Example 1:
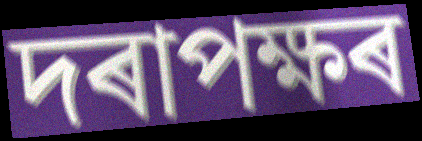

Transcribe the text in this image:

দৰাপক্ষৰ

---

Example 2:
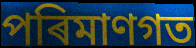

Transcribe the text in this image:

পৰিমাণগত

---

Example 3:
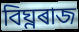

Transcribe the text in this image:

বিঘ্নৰাজ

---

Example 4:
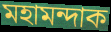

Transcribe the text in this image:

মহামন্দাক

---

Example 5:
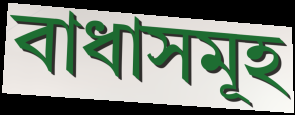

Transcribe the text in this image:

বাধাসমূহ